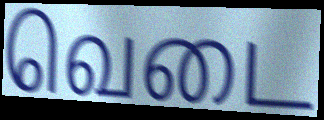
வெடை